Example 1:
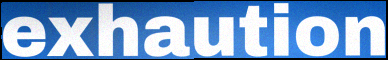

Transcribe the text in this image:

exhaution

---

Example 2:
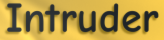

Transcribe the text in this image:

Intruder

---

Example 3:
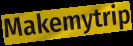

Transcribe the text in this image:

Makemytrip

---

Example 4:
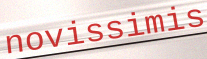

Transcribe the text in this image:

novissimis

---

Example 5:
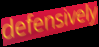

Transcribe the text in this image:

defensively